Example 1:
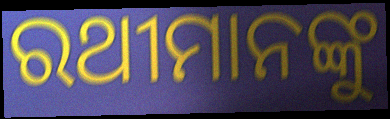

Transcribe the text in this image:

ରଥୀମାନଙ୍କୁ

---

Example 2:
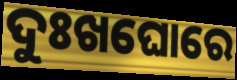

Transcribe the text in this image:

ଦୁଃଖଘୋରେ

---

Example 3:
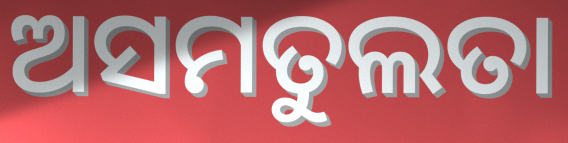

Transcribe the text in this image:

ଅସମତୁଲତା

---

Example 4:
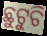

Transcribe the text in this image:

ଛୁଟୁଚି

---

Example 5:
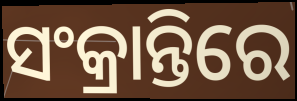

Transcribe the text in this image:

ସଂକ୍ରାନ୍ତିରେ